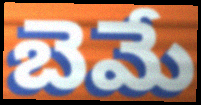
బెమే